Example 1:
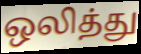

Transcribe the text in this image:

ஒலித்து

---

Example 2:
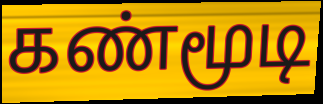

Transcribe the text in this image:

கண்மூடி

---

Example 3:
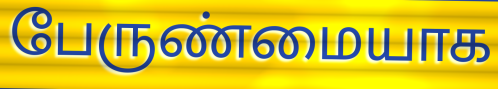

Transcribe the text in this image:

பேருண்மையாக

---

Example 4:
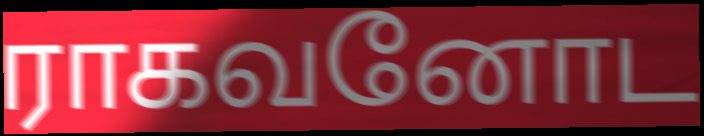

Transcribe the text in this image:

ராகவனோட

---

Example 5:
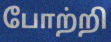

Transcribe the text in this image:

போற்றி